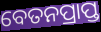
ବେତନପ୍ରାପ୍ତ